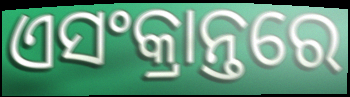
ଏସଂକ୍ରାନ୍ତରେ